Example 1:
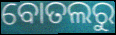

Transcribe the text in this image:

ବୋତଲରୁ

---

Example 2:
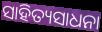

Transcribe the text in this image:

ସାହିତ୍ୟସାଧନା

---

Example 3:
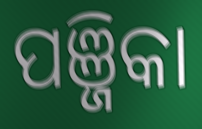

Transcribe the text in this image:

ପଞ୍ଜିକା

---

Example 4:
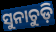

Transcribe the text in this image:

ସୁନାଚୁଡ଼ି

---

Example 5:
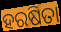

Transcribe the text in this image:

ହରଷିତା